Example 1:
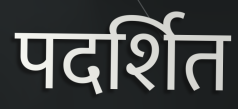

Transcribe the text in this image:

पदर्शित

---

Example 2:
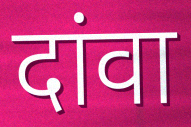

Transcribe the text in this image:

दांवा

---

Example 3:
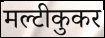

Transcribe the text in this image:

मल्टीकुकर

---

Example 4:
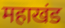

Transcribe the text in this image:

महाखंड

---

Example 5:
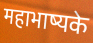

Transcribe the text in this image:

महाभाष्यके